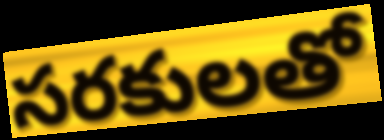
సరకులతో